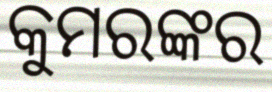
କୁମରଙ୍କର